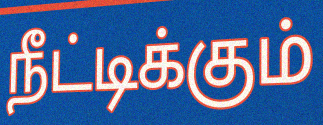
நீட்டிக்கும்